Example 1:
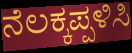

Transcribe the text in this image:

ನೆಲಕ್ಕಪ್ಪಳಿಸಿ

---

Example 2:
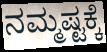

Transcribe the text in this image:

ನಮ್ಮಷ್ಟಕ್ಕೆ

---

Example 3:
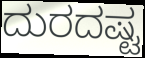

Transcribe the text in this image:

ದುರದಷ್ಟ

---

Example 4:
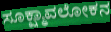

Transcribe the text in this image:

ಸೂಕ್ಷ್ಮಾವಲೋಕನ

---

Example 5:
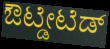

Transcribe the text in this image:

ಔಟ್ಡೇಟೆಡ್